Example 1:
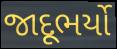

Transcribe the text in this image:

જાદૂભર્યો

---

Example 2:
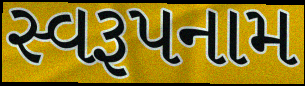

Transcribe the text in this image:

સ્વરૂપનામ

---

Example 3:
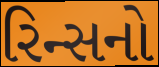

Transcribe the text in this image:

રિન્સનો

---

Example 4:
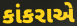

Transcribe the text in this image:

કાંકરાએ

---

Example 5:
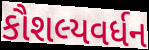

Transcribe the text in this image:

કૌશલ્યવર્ધન